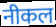
नीकल